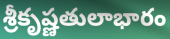
శ్రీకృష్ణతులాభారం